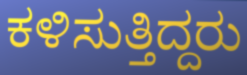
ಕಳಿಸುತ್ತಿದ್ದರು